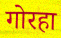
गोरहा